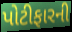
પોટીફારની